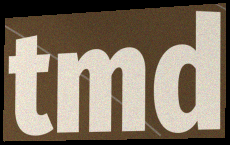
tmd